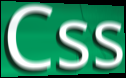
Css